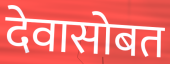
देवासोबत